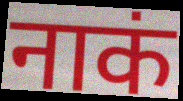
नाकं